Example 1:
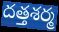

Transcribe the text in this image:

దత్తశర్మ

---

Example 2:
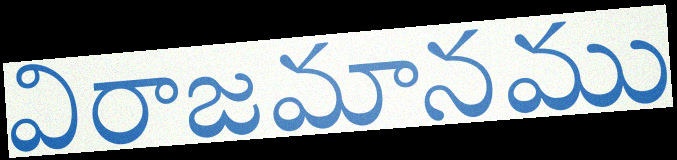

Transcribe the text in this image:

విరాజమానము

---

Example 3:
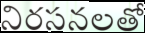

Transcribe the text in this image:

నిరసనలతో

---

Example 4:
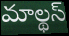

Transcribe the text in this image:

మాల్థస్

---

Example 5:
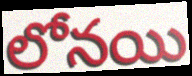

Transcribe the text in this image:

లోనయి